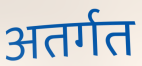
अतर्गत